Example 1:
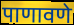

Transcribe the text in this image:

पाणावणे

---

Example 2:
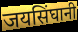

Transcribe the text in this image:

जयसिंघानी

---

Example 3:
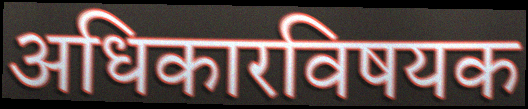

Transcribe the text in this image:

अधिकारविषयक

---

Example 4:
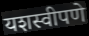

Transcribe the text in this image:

यशस्वीपणे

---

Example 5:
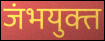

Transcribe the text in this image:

जंभयुक्त